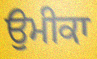
ਉਮੀਕਾ